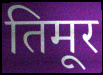
तिमूर